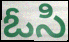
ఓసి